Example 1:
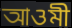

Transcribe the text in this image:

আওমী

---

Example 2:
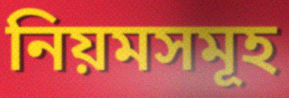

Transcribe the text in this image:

নিয়মসমূহ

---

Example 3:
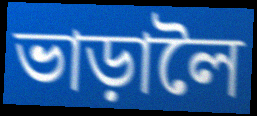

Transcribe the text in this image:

ভাড়ালৈ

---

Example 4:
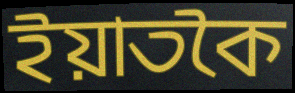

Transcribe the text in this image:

ইয়াতকৈ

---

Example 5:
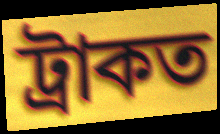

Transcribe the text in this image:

ট্ৰাকত